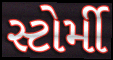
સ્ટોર્મી